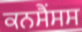
ਕਨਸੈਂਸਸ